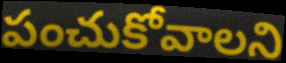
పంచుకోవాలని